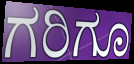
ಗರಿಗೂ